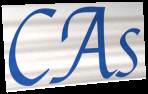
CAs